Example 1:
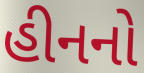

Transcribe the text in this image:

હીનનો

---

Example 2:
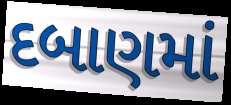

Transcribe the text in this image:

દબાણમાં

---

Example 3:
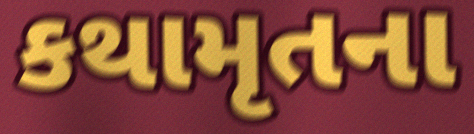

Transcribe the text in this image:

કથામૃતના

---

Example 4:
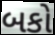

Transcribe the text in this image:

બકો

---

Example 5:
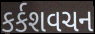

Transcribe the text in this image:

કર્કશવચન